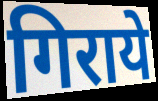
गिराये